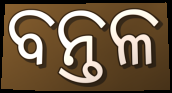
ବନ୍ତଳ